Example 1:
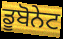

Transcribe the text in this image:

ਡੂਬੋਨੇਟ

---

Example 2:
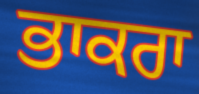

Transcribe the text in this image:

ਭਾਕਰਾ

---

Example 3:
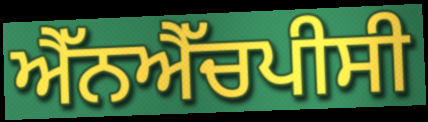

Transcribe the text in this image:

ਐੱਨਐੱਚਪੀਸੀ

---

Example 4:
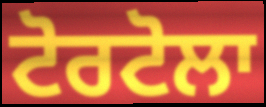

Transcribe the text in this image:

ਟੋਰਟੋਲਾ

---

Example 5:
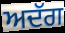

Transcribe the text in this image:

ਅਦੱਗ